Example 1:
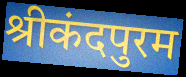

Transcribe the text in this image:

श्रीकंदपुरम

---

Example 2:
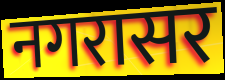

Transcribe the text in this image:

नगरासर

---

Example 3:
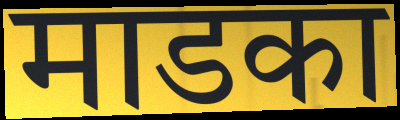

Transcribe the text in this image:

माडका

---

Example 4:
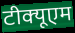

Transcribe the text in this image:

टीक्यूएम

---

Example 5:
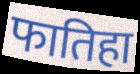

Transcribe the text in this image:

फातिहा